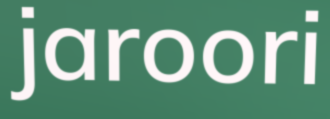
jaroori